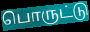
பொருட்டு